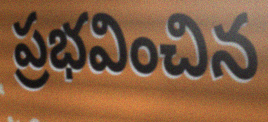
ప్రభవించిన